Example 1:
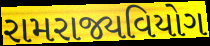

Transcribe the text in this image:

રામરાજ્યવિયોગ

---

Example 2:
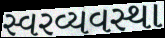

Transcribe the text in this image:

સ્વરવ્યવસ્થા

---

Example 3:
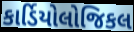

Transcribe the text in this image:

કાર્ડિયોલોજિકલ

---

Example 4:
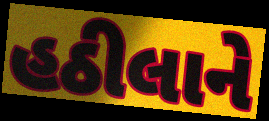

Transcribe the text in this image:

હઠીલાને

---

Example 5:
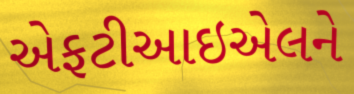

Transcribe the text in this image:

એફટીઆઇએલને